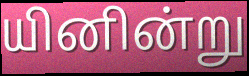
யினின்று